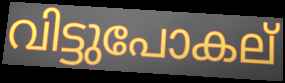
വിട്ടുപോകല്